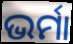
ଭର୍ମା